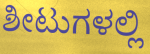
ಶೀಟುಗಳಲ್ಲಿ